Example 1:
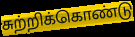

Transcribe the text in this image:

சுற்றிக்கொண்டு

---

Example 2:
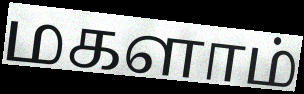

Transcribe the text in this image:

மகளாம்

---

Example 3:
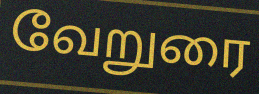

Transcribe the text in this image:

வேறுரை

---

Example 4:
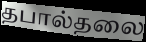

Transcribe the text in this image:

தபால்தலை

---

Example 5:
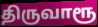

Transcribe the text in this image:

திருவாரூ